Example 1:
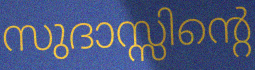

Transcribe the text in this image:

സുദാസ്സിന്റെ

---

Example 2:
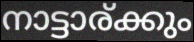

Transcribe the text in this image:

നാട്ടാര്ക്കും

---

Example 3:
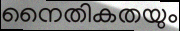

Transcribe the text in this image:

നൈതികതയും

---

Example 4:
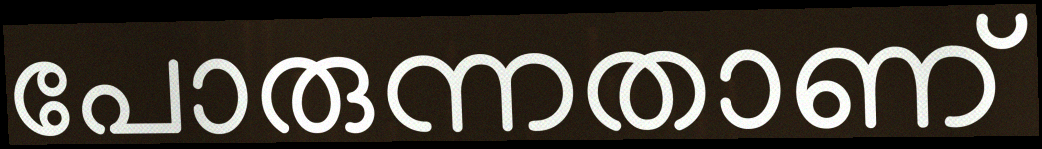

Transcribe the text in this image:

പോരുന്നതാണ്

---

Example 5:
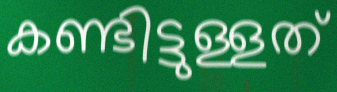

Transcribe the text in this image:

കണ്ടിട്ടുള്ളത്